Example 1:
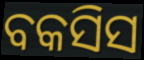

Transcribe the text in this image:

ବକସିସ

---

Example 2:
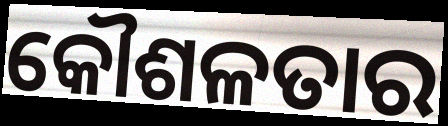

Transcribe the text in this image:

କୌଶଳତାର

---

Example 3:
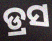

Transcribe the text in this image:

ଡ୍ରସ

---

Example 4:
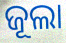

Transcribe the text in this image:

ଜୂଲା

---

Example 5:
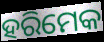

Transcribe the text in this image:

ହରିମେକ